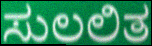
ಸುಲಲಿತ